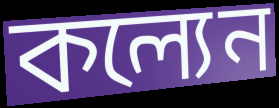
কল্যেন